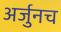
अर्जुनच